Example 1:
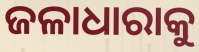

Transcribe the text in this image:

ଜଳାଧାରାକୁ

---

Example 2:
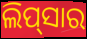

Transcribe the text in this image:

ଲିପ୍‌ସାର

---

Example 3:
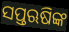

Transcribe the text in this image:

ସପ୍ତଋଷିଙ୍କ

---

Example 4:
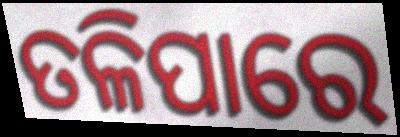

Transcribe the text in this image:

ତଳିପାରେ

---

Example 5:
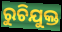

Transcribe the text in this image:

ରୁଚିଯୁକ୍ତ